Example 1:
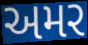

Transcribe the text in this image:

અમર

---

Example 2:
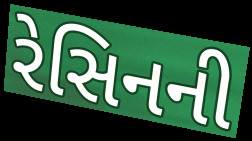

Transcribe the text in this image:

રેસિનની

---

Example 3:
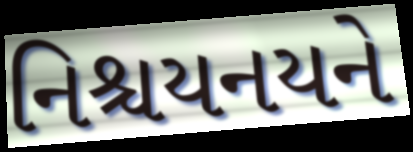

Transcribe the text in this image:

નિશ્ચયનયને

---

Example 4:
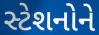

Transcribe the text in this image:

સ્ટેશનોને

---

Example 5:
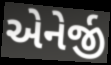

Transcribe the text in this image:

એનેર્જી